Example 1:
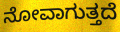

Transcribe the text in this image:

ನೋವಾಗುತ್ತದೆ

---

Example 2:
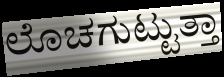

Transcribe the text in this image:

ಲೊಚಗುಟ್ಟುತ್ತಾ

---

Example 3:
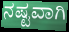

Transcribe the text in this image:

ನಷ್ಟವಾಗಿ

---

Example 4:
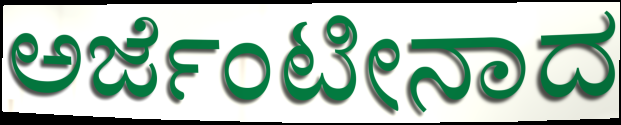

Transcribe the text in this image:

ಅರ್ಜೆಂಟೀನಾದ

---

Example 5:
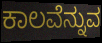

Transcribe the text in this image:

ಕಾಲವೆನ್ನುವ